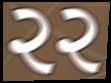
રર